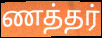
ணத்தர்